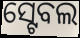
ସ୍ଟେବଲ